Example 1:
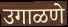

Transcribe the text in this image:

उगाळणे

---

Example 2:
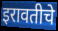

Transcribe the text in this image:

इरावतीचे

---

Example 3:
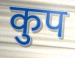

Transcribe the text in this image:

कुप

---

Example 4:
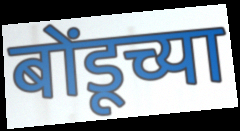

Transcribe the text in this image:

बोंडूच्या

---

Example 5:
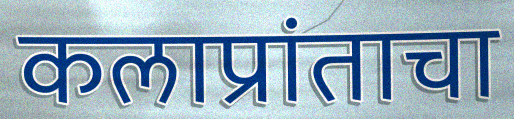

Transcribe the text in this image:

कलाप्रांताचा